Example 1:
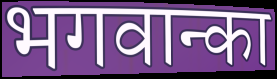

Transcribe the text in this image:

भगवान्का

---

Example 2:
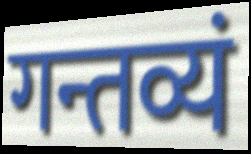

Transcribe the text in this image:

गन्तव्यं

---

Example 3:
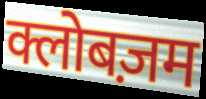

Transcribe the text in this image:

क्लोबज़म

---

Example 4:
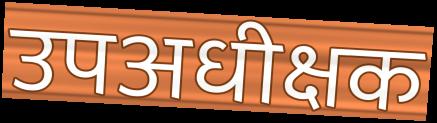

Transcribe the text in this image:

उपअधीक्षक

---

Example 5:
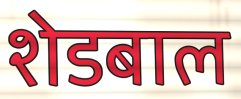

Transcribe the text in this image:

शेडबाल